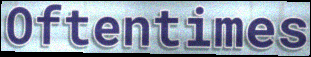
Oftentimes